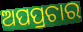
ଅପପ୍ରଚାର